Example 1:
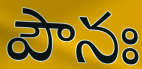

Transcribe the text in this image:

పౌనః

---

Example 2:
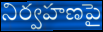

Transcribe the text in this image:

నిర్వహణపై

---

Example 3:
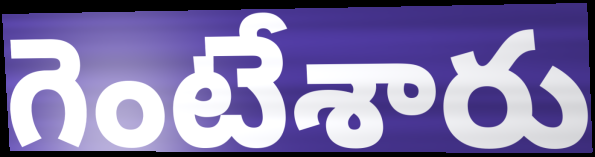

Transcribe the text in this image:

గెంటేశారు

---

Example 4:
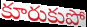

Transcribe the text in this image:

కూరుకుపో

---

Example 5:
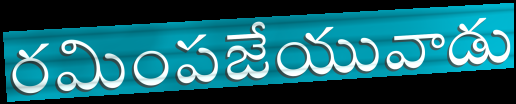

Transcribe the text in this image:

రమింపజేయువాడు